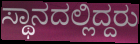
ಸ್ಥಾನದಲ್ಲಿದ್ದರು